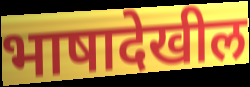
भाषादेखील